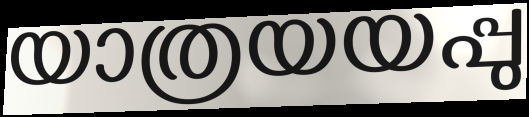
യാത്രയയപ്പു